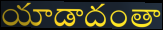
యాడాదంతా